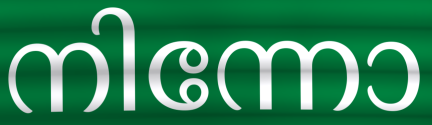
നിന്നോ